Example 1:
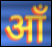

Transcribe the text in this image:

आँ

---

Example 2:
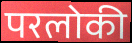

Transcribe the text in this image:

परलोकी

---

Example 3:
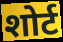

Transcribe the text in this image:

शोर्ट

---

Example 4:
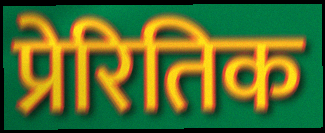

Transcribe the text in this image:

प्रेरितिक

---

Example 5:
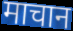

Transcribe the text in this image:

माचान